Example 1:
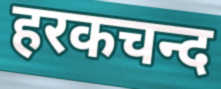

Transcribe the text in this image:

हरकचन्द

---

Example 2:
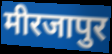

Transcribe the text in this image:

मीरजापुर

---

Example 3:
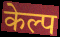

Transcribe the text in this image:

केल्प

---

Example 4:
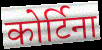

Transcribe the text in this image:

कोर्टिना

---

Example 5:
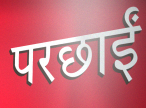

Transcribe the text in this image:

परछाईं